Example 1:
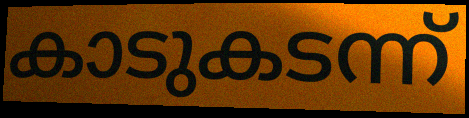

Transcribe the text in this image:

കാടുകടന്ന്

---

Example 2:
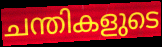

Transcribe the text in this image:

ചന്തികളുടെ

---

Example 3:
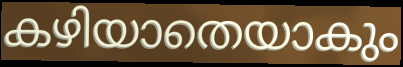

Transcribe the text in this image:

കഴിയാതെയാകും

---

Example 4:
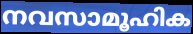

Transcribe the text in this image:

നവസാമൂഹിക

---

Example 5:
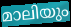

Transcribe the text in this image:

മാലിയും